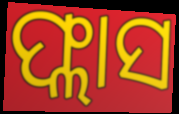
ଫ୍ଲାସ